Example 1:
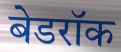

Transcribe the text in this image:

बेडरॉक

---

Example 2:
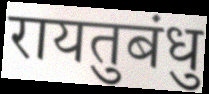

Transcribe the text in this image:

रायतुबंधु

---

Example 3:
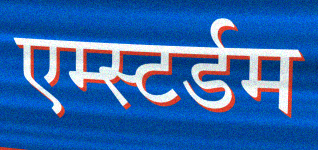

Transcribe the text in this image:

एम्स्टर्डम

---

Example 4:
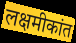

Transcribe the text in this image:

लक्षमीकांत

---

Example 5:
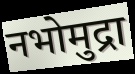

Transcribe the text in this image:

नभोमुद्रा